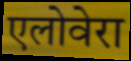
एलोवेरा